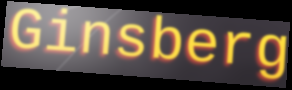
Ginsberg